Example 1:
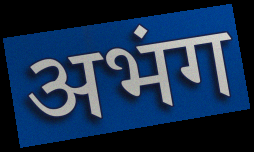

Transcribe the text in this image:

अभंग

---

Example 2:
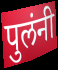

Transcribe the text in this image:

पुलंनी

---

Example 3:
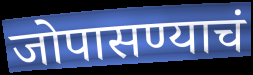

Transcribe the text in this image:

जोपासण्याचं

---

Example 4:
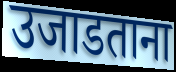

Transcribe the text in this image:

उजाडताना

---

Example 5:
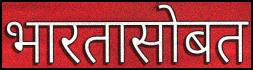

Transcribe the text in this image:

भारतासोबत